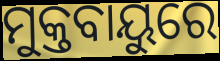
ମୁକ୍ତବାୟୁରେ